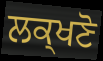
ਲਕ੍ਖਣੋ